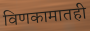
विणकामातही